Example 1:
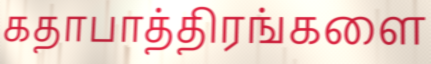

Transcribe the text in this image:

கதாபாத்திரங்களை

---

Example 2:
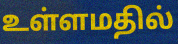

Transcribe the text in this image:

உள்ளமதில்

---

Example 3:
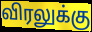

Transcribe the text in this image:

விரலுக்கு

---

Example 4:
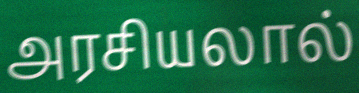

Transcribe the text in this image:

அரசியலால்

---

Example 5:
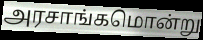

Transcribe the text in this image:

அரசாங்கமொன்று